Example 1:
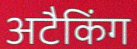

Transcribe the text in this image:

अटैकिंग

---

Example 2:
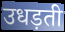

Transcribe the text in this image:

उधड़ती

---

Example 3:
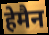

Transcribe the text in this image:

हेमैन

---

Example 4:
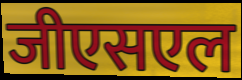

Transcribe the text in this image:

जीएसएल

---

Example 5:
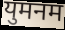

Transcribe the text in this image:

युमनम